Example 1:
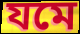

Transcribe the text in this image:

যমে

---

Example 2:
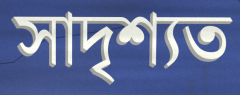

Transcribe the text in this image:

সাদৃশ্যত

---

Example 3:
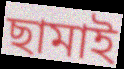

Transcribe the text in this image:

ছামাই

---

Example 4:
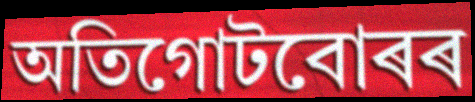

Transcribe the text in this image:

অতিগোটবোৰৰ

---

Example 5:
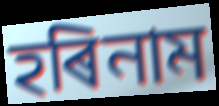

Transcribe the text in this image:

হৰিনাম